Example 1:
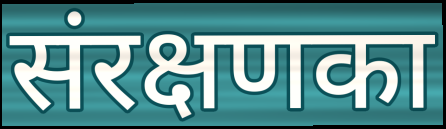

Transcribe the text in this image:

संरक्षणका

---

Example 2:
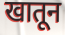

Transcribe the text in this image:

खातून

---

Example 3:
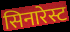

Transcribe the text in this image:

सिनारेस्ट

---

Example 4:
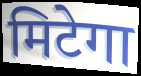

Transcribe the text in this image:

मिटेगा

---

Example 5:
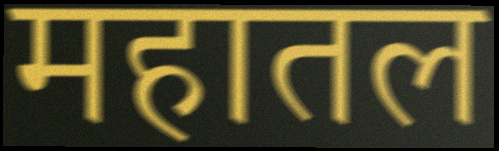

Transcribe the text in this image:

महातल